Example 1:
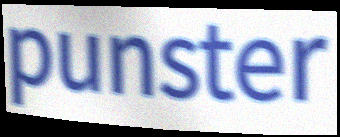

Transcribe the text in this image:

punster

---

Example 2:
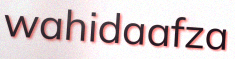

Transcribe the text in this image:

wahidaafza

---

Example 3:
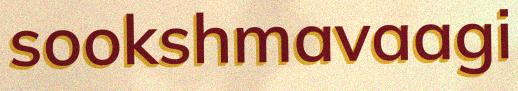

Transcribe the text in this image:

sookshmavaagi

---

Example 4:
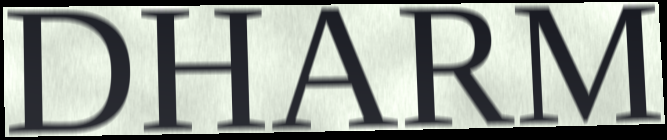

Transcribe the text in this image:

DHARM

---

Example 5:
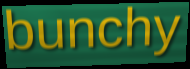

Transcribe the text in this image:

bunchy